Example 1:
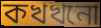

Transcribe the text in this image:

কখখনো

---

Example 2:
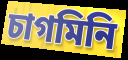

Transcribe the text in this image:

চাগমিনি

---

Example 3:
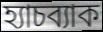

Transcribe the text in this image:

হ্যাচব্যাক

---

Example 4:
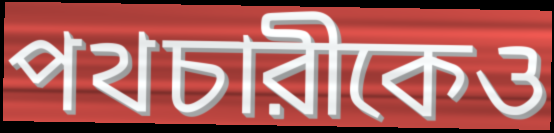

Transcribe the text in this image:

পথচারীকেও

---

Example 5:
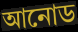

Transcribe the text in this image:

আনোড